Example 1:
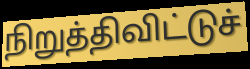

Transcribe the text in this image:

நிறுத்திவிட்டுச்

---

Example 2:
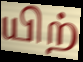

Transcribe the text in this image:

யிற்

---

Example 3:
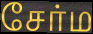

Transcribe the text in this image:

சேர்ம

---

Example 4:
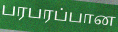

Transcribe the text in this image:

பரபரப்பான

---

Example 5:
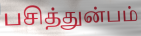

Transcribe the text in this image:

பசித்துன்பம்